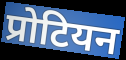
प्रोटियन